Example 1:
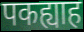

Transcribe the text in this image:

पकह्याह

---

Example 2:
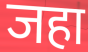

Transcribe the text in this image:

जहा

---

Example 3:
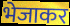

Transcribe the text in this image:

भेजाकर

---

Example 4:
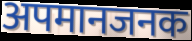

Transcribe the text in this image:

अपमानजनक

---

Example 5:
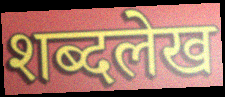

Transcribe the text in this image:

शब्दलेख